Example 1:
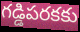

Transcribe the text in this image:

గడ్డిపరకకు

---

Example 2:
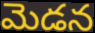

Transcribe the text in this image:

మెడన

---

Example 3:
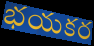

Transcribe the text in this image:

భయకర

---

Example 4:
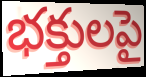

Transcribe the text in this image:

భక్తులపై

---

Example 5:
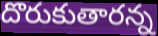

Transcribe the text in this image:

దొరుకుతారన్న